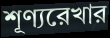
শূণ্যরেখার